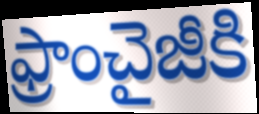
ఫ్రాంచైజీకి